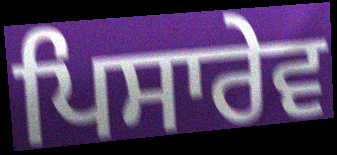
ਪਿਸਾਰੇਵ